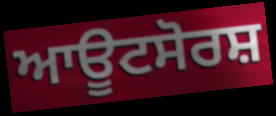
ਆਊਟਸੋਰਸ਼